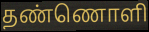
தண்ணொளி